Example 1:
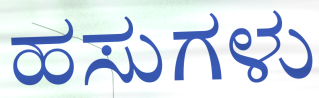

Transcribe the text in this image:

ಹಸುಗಳು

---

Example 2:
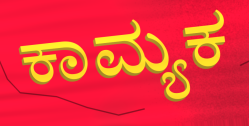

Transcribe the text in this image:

ಕಾಮ್ಯಕ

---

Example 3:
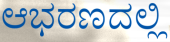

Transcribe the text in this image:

ಆಭರಣದಲ್ಲಿ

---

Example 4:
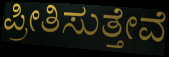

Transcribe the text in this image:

ಪ್ರೀತಿಸುತ್ತೇವೆ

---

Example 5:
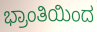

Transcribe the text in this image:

ಭ್ರಾಂತಿಯಿಂದ